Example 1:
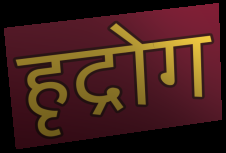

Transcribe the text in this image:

हृद्रोग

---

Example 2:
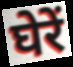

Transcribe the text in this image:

घेरें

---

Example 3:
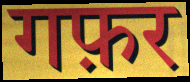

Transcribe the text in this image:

गफ़र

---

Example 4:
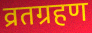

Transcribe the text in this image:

व्रतग्रहण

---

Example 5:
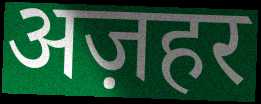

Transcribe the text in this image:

अज़हर